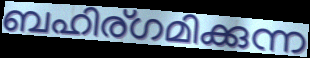
ബഹിര്ഗമിക്കുന്ന